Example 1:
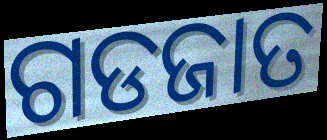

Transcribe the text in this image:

ଗଡଜାତ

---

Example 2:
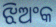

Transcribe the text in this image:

ଝିଅଂକ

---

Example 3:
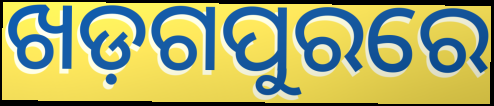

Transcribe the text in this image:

ଖଡ଼ଗପୁରରେ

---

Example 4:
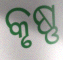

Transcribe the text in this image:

କୃଷ୍ଣ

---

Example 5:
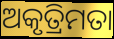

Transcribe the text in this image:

ଅକୃତ୍ରିମତା